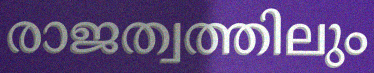
രാജത്വത്തിലും